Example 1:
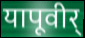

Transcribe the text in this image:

यापूवीर्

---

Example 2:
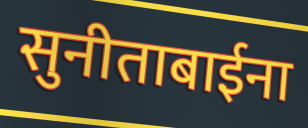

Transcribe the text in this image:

सुनीताबाईना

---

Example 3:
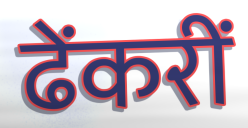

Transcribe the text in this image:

ढेंकरीं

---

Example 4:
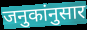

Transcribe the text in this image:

जनुकांनुसार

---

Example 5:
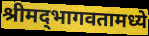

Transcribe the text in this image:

श्रीमद्‌भागवतामध्ये